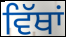
ਵਿੱਥਾਂ